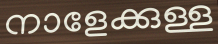
നാളേക്കുള്ള